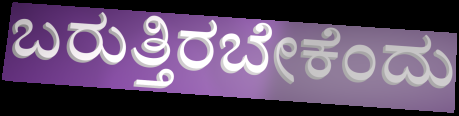
ಬರುತ್ತಿರಬೇಕೆಂದು